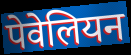
पेवेलियन